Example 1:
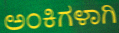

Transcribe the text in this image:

ಅಂಕಿಗಳಾಗಿ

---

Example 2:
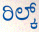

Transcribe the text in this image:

ರಿಲ್ಕ್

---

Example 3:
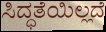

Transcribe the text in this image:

ಸಿದ್ಧತೆಯಿಲ್ಲದೆ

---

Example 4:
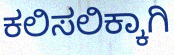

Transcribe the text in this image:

ಕಲಿಸಲಿಕ್ಕಾಗಿ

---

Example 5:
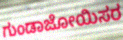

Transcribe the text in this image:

ಗುಂಡಾಜೋಯಿಸರ